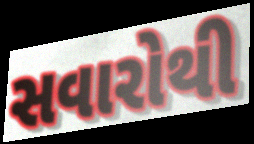
સવારોથી